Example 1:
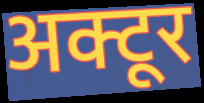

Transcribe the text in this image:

अक्टूर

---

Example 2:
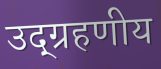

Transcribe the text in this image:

उद्ग्रहणीय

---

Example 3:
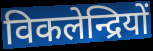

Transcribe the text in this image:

विकलेन्द्रियों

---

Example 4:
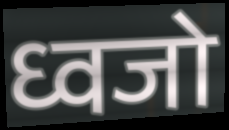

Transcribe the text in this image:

ध्वजो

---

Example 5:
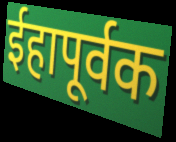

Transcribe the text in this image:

ईहापूर्वक